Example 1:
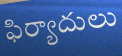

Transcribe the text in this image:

ఫిర్యాదులు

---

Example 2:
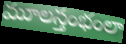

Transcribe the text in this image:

మూలస్తంభంలా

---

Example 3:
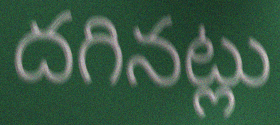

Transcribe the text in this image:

దగినట్లు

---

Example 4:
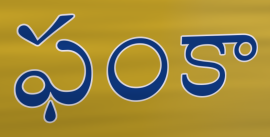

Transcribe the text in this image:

ఫంకా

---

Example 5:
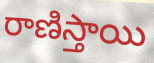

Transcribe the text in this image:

రాణిస్తాయి